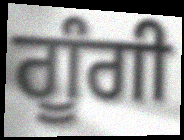
ਗੂੰਗੀ